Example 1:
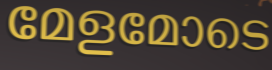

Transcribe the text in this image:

മേളമോടെ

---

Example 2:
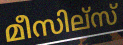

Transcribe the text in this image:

മീസില്സ്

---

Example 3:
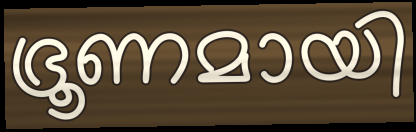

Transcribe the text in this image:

ഭ്രൂണമായി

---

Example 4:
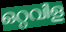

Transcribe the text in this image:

ഒറ്റവിള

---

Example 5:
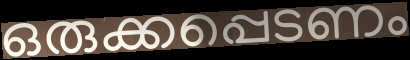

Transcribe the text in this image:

ഒരുക്കപ്പെടണം